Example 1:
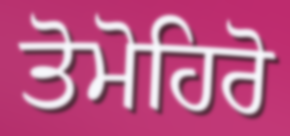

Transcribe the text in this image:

ਤੋਮੋਹਿਰੋ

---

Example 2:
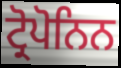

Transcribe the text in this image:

ਟ੍ਰੋਪੋਨਿਨ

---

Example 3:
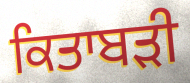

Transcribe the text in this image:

ਕਿਤਾਬੜੀ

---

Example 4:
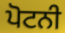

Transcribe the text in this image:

ਪੋਟਨੀ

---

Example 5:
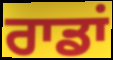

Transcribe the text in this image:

ਰਾਡਾਂ